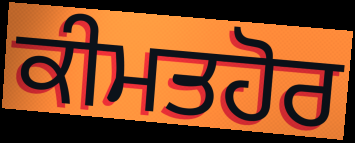
ਕੀਮਤਹੋਰ